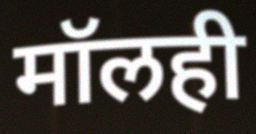
मॉलही